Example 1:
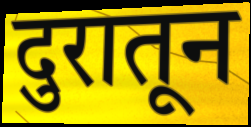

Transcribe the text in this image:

दुरातून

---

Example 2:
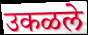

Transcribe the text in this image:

उकळले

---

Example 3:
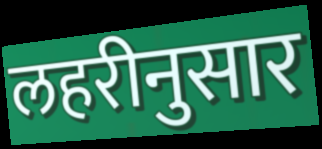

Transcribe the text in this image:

लहरीनुसार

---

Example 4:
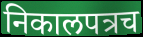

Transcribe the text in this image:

निकालपत्रच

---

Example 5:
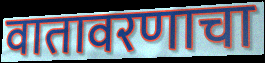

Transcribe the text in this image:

वातावरणाचा